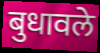
बुधावले